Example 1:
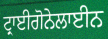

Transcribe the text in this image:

ਟ੍ਰਾਈਗੋਨੇਲਾਈਨ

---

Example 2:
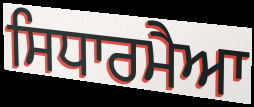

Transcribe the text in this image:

ਸਿਧਾਰਮੈਆ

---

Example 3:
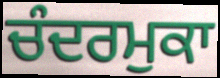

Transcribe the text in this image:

ਚੰਦਰਮੁਕਾ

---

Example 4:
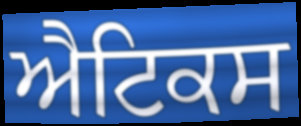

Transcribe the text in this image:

ਐਟਿਕਸ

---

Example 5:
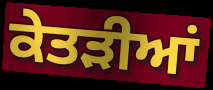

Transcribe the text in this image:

ਕੇਤੜੀਆਂ